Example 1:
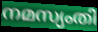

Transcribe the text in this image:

നമസ്യംതി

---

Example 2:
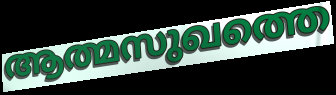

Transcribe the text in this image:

ആത്മസുഖത്തെ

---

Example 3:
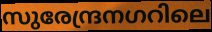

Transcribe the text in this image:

സുരേന്ദ്രനഗറിലെ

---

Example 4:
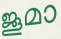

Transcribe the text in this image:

ജൂമാ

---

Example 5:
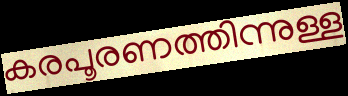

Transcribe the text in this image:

കരപൂരണത്തിന്നുള്ള